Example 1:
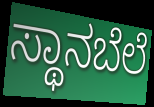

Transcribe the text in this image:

ಸ್ಥಾನಬೆಲೆ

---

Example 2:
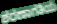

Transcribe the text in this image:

ಶರಣಾಗತಿಯ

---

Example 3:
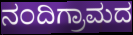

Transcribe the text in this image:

ನಂದಿಗ್ರಾಮದ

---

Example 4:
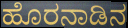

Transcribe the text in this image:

ಹೊರನಾಡಿನ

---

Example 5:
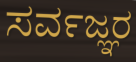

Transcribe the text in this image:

ಸರ್ವಜ್ಞರ